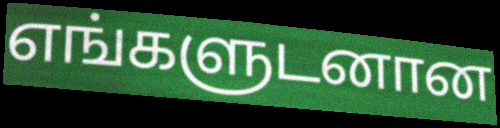
எங்களுடனான